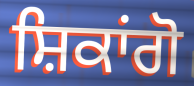
ਸ਼ਿਕਾਂਗੋ